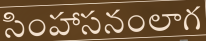
సింహాసనంలాగ